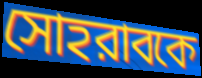
সোহরাবকে